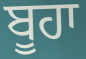
ਬੂਹਾ